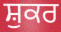
ਸ਼ੁਕਰ